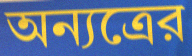
অন্যত্রের